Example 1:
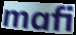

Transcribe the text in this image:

mafi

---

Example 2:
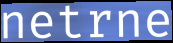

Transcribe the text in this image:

netrne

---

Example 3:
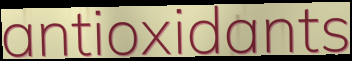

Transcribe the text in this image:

antioxidants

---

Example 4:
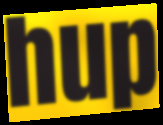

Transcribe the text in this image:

hup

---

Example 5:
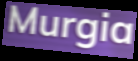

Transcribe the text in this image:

Murgia